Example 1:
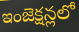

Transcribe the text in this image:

ఇంజెక్షన్లలో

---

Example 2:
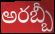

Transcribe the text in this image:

అరబ్బీ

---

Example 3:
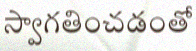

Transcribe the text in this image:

స్వాగతించడంతో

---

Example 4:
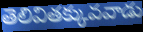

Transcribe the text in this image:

తెలివితక్కువవాడు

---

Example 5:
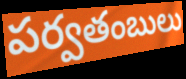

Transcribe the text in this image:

పర్వతంబులు